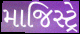
માજિસ્ટ્રે